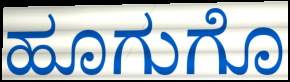
ಹೂಗುಗೊ